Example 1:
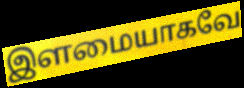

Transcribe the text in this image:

இளமையாகவே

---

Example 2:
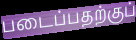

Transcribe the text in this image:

படைப்பதற்குப்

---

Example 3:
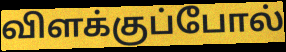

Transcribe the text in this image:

விளக்குப்போல்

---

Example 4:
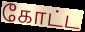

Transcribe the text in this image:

கோட்ட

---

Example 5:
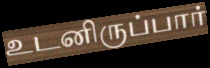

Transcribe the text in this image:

உடனிருப்பார்